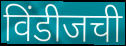
विंडीजची